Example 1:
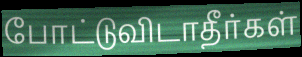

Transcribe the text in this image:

போட்டுவிடாதீர்கள்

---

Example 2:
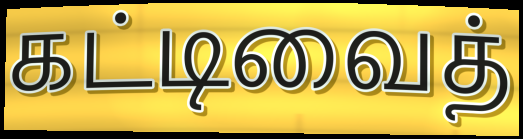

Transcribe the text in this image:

கட்டிவைத்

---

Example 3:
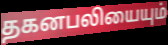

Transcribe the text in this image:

தகனபலியையும்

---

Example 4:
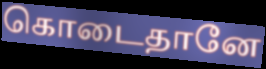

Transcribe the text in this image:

கொடைதானே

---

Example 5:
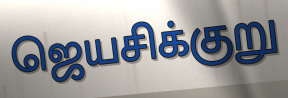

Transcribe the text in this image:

ஜெயசிக்குறு